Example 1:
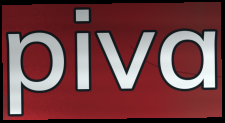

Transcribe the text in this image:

piva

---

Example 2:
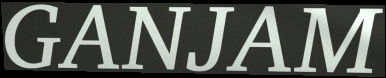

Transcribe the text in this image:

GANJAM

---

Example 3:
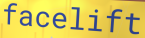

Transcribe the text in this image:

facelift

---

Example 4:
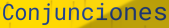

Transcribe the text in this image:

Conjunciones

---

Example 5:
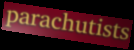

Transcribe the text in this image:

parachutists